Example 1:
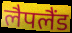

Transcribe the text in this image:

लैपलैंड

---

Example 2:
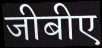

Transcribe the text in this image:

जीबीए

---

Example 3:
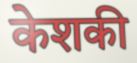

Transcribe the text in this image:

केशकी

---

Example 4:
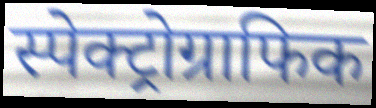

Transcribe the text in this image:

स्पेक्ट्रोग्राफिक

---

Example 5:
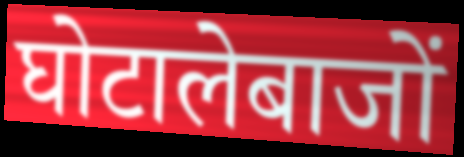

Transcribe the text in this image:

घोटालेबाजों